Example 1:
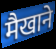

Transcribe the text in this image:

मैखाने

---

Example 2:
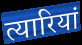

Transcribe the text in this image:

त्यारियां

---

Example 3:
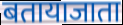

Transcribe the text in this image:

बतायाजाता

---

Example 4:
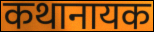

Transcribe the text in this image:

कथानायक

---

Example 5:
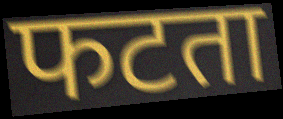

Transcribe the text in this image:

फटता